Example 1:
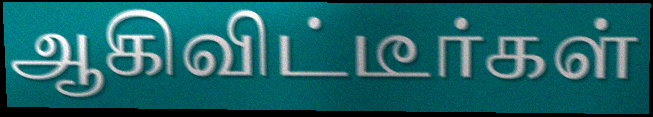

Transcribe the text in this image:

ஆகிவிட்டீர்கள்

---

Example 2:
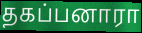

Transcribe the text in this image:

தகப்பனாரா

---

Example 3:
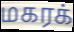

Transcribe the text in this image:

மகரக்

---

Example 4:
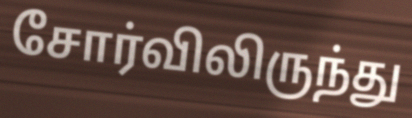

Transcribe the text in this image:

சோர்விலிருந்து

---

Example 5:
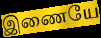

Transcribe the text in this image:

இணையே